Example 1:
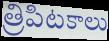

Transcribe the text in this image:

త్రిపిటకాలు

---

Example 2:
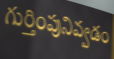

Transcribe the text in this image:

గుర్తింపునివ్వడం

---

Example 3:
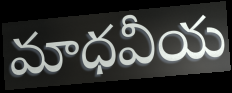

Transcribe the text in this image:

మాధవీయ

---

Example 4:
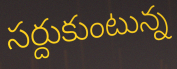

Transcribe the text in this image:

సర్దుకుంటున్న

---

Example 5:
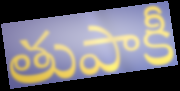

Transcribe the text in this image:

తుపాకీ